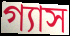
গ্যাস